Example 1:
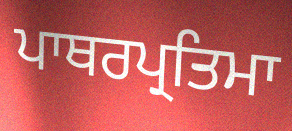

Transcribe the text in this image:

ਪਾਥਰਪ੍ਰਤਿਮਾ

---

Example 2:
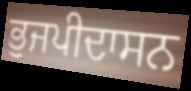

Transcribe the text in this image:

ਭੁਜਪੀਦਾਸਨ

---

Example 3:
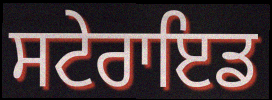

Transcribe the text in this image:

ਸਟੇਰਾਇਡ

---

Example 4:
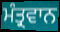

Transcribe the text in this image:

ਮੰਤ੍ਰਵਾਨ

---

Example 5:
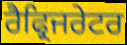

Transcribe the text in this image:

ਰੈਫ੍ਰਿਜਰੇਟਰ